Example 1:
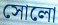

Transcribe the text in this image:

সোলো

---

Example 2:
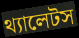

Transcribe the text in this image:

থ্যালেটস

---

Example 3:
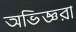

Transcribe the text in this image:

অভিজ্ঞরা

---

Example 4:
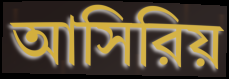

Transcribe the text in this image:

আসিরিয়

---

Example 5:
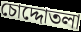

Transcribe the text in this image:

চোদ্দোতলা